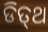
ଡିତ୍‍ଥ